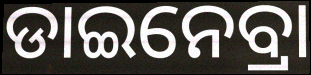
ଡାଇନେବ୍ରା